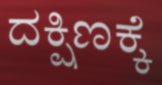
ದಕ್ಷಿಣಕ್ಕೆ